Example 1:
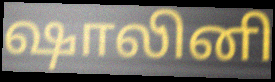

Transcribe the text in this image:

ஷாலினி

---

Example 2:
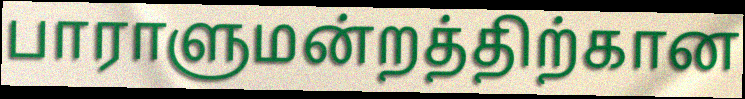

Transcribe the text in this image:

பாராளுமன்றத்திற்கான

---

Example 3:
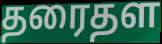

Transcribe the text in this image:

தரைதள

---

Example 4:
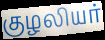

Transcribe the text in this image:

குழலியர்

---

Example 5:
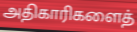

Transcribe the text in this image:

அதிகாரிகளைத்